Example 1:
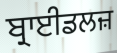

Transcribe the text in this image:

ਬ੍ਰਾਈਡਲਜ਼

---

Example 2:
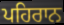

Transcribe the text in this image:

ਪਹਿਰਾਨ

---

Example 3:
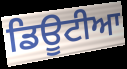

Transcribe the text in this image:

ਡਿਊਟੀਆ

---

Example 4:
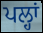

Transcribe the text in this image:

ਪਲ੍ਹਾਂ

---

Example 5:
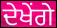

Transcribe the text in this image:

ਦੇਖੇਂਗੇ